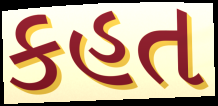
કહત